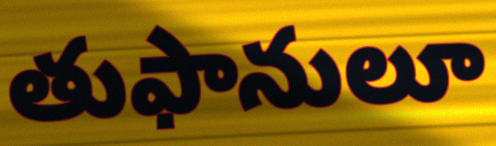
తుఫానులూ